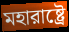
মহারাষ্ট্রে